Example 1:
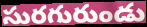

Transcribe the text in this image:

సురగురుండు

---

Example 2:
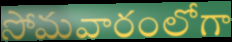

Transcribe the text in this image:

సోమవారంలోగా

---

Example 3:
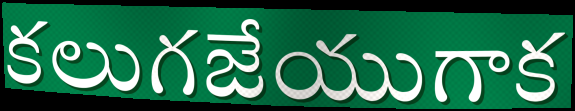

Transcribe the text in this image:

కలుగజేయుగాక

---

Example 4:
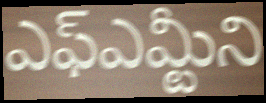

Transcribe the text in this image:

ఎఫ్ఎమ్టీని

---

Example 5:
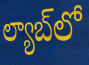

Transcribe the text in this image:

ల్యాబ్‌లో